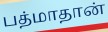
பத்மாதான்